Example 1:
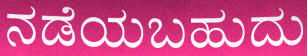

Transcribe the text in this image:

ನಡೆಯಬಹುದು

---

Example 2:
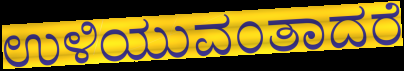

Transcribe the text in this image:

ಉಳಿಯುವಂತಾದರೆ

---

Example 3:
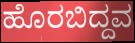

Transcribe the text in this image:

ಹೊರಬಿದ್ದವ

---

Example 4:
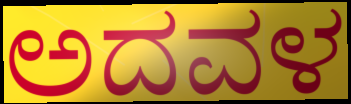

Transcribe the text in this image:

ಅದವಳ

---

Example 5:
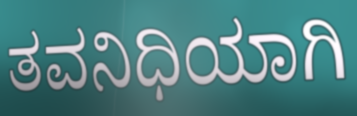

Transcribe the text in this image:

ತವನಿಧಿಯಾಗಿ